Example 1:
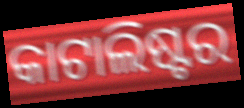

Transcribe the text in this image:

କାଟାଲିଷ୍ଟର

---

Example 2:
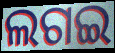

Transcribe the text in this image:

ଲଗଇ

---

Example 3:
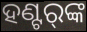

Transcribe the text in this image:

ହଣ୍ଟର୍‌ଙ୍କ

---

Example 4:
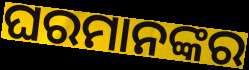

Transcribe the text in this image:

ଘରମାନଙ୍କର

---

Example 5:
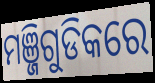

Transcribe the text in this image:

ମଞ୍ଜିଗୁଡିକରେ